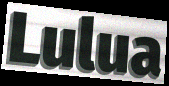
Lulua